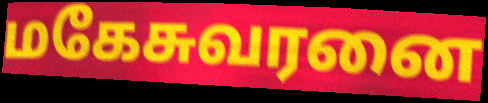
மகேசுவரனை